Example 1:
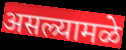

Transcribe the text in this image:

असल्यामळे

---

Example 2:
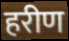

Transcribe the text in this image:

हरीण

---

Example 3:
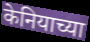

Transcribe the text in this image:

केनियाच्या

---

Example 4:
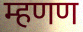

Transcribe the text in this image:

म्हणण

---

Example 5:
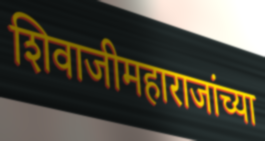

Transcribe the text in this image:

शिवाजीमहाराजांच्या